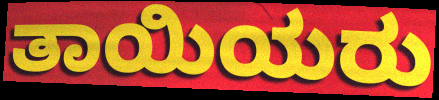
ತಾಯಿಯರು